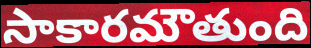
సాకారమౌతుంది